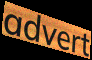
advert